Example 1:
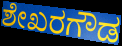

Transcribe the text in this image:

ಶೇಖರಗೌಡ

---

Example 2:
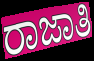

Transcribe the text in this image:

ರಾಜಾತಿ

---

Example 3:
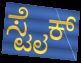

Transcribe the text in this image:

ಸ್ಟೈಕ್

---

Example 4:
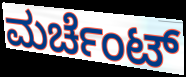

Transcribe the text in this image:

ಮರ್ಚೆಂಟ್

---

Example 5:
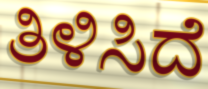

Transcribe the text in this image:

ತಿಳಿಸಿದೆ